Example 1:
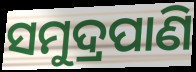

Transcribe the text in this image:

ସମୁଦ୍ରପାଣି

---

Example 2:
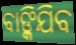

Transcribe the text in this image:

ବାଙ୍କିଯିବ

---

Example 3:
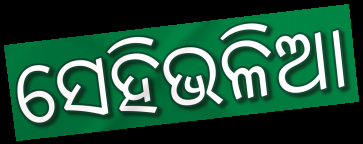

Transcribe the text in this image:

ସେହିଭଳିଆ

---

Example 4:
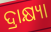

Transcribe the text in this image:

ଦ୍ରାକ୍ଷ୍ୟା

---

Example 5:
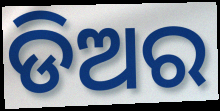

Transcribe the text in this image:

ଡିଅର